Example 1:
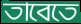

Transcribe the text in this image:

তাবেতে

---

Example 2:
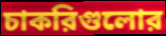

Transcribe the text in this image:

চাকরিগুলোর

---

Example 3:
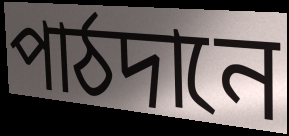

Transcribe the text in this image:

পাঠদানে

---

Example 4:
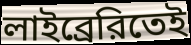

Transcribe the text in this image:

লাইব্রেরিতেই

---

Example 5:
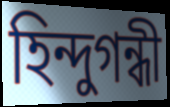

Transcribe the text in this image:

হিন্দুগন্ধী